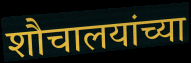
शौचालयांच्या